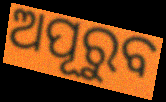
ଅପୂରୁବ